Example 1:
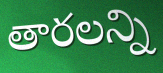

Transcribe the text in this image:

తారలన్ని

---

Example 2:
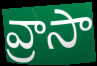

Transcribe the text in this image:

వ్రాసా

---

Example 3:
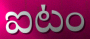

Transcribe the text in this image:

ఐటం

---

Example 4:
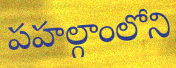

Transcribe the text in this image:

పహల్గాంలోని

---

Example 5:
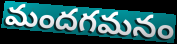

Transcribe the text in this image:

మందగమనం